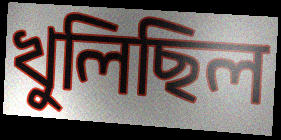
খুলিছিল